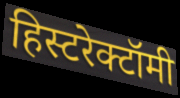
हिस्टरेक्टॉमी